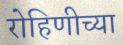
रोहिणीच्या